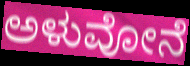
ಅಳುವೋನೆ